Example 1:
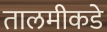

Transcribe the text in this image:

तालमीकडे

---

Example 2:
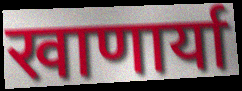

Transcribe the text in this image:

खाणार्या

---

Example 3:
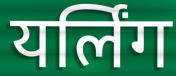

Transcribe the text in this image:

यर्लिंग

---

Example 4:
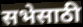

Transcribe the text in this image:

सभेसाठी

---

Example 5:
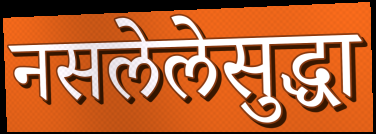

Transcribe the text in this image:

नसलेलेसुद्धा